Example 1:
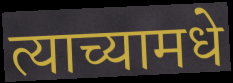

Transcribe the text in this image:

त्याच्यामधे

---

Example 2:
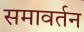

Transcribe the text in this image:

समावर्तन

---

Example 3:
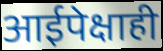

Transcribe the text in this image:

आईपेक्षाही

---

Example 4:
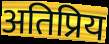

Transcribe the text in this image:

अतिप्रिय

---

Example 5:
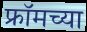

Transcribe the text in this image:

फ्रॉमच्या